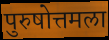
पुरुषोत्तमला